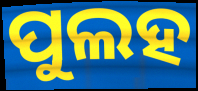
ପୁଲହ